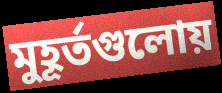
মুহূর্তগুলোয়